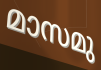
മാസമു